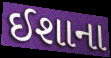
ઈશાના